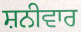
ਸ਼ਨੀਵਾਰ